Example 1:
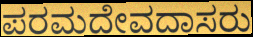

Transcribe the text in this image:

ಪರಮದೇವದಾಸರು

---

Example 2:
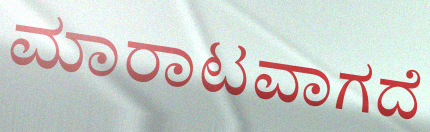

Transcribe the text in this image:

ಮಾರಾಟವಾಗದೆ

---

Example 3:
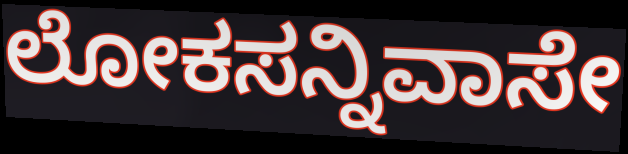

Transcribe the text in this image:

ಲೋಕಸನ್ನಿವಾಸೇ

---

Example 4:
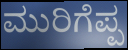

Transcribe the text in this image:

ಮುರಿಗೆಪ್ಪ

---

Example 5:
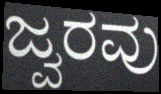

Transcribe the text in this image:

ಜ್ವರವು